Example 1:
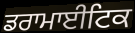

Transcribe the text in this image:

ਡਰਾਮਾਈਟਿਕ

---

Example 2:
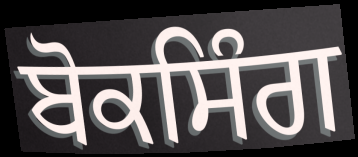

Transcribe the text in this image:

ਬੋਕਸਿੰਗ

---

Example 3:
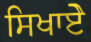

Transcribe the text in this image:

ਸਿਖਾਏੇ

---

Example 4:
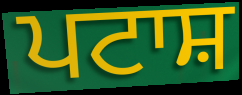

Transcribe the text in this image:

ਪਟਾਸ਼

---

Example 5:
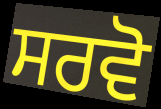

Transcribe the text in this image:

ਸਰਵੋ